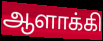
ஆளாக்கி